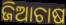
ଜିଆଚାଷ